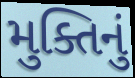
મુક્તિનું